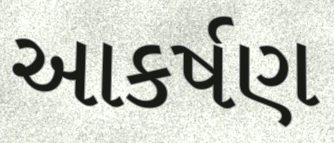
આકર્ષણ